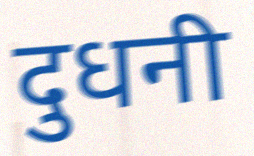
दुधनी